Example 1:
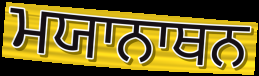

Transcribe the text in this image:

ਮਯਾਨਾਥਨ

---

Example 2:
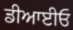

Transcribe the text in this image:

ਡੀਆਈਓ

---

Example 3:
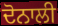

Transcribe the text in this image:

ਦੋਨਾਲੀ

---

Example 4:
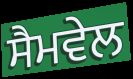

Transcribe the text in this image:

ਸੈਮਵੇਲ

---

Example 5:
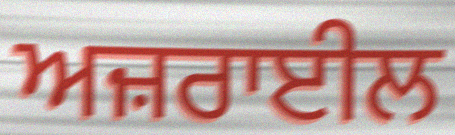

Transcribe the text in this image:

ਅਜ਼ਰਾਈਲ